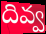
దివ్వ